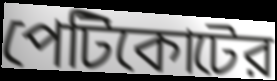
পেটিকোটের